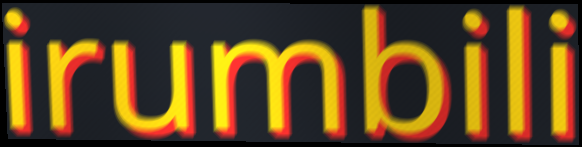
irumbili